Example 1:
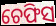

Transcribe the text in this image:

ଚେଫିସ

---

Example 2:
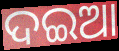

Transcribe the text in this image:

ଦଇଆ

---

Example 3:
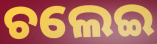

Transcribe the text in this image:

ଚଲେଇ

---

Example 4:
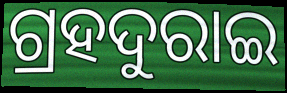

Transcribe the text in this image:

ଗ୍ରହଦୁରାଇ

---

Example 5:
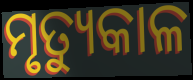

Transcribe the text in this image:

ମୃତ୍ୟୁକାଳ